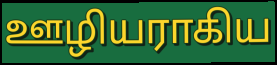
ஊழியராகிய